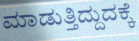
ಮಾಡುತ್ತಿದ್ದುದಕ್ಕೆ